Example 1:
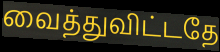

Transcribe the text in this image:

வைத்துவிட்டதே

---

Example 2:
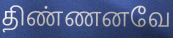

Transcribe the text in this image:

திண்ணனவே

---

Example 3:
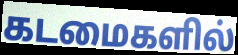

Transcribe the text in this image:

கடமைகளில்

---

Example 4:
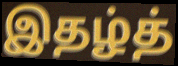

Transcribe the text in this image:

இதழ்த்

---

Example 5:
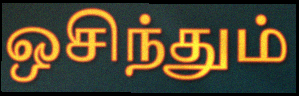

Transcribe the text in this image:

ஒசிந்தும்